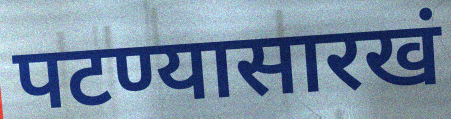
पटण्यासारखं